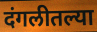
दंगलीतल्या